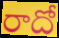
రాదో